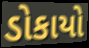
ડોકાયો